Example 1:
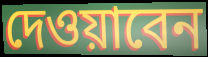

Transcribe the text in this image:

দেওয়াবেন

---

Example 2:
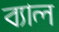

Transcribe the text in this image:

ব্যাল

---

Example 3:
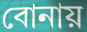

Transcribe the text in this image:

বোনায়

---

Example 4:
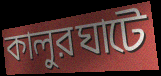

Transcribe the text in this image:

কালুরঘাটে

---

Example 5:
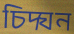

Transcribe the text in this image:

চিদ্ঘন